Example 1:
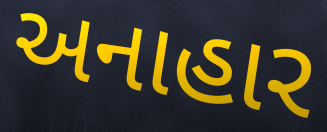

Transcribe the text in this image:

અનાહાર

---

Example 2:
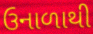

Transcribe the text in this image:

ઉનાળાથી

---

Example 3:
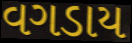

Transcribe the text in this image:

વગડાય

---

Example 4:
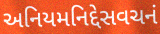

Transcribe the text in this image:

અનિયમનિદ્દેસવચનં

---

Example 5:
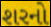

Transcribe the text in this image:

શરનો